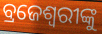
ବ୍ରଜେଶ୍ୱରୀଙ୍କୁ